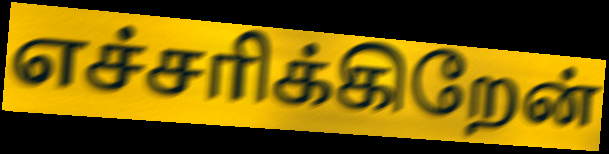
எச்சரிக்கிறேன்